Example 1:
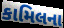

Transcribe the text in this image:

કામિલના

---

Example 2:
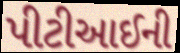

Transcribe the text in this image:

પીટીઆઈની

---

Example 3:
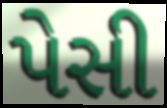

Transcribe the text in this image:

પેસી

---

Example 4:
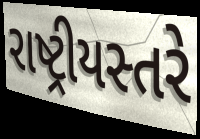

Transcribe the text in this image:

રાષ્ટ્રીયસ્તરે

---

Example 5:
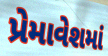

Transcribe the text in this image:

પ્રેમાવેશમાં